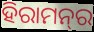
ହିରାମନ୍‍ର